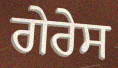
ਗੇਰੇਸ